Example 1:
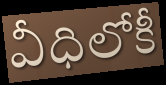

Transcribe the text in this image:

వీధిలోకీ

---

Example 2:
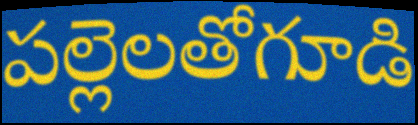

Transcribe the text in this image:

పల్లెలతోగూడి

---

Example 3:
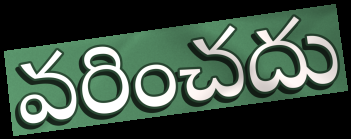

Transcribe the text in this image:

వరించదు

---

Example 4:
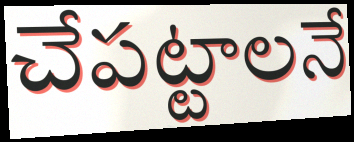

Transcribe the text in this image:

చేపట్టాలనే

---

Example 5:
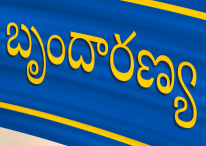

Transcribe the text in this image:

బృందారణ్య